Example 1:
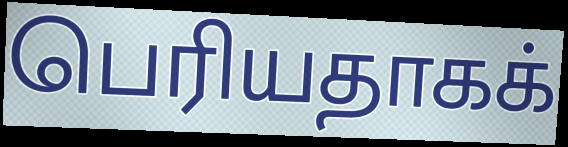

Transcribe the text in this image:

பெரியதாகக்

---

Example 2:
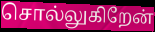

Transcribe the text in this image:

சொல்லுகிறேன்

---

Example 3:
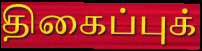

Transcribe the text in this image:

திகைப்புக்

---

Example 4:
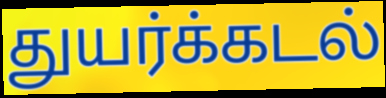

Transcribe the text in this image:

துயர்க்கடல்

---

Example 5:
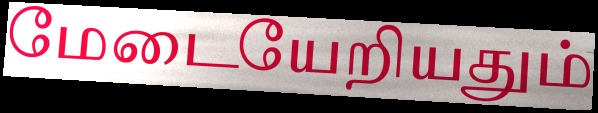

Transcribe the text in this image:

மேடையேறியதும்